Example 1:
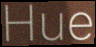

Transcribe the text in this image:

Hue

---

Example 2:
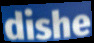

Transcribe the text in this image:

dishe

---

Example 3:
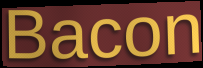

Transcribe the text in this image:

Bacon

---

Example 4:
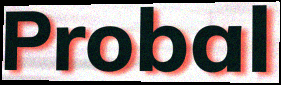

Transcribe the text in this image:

Probal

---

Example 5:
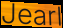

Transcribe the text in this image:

Jearl